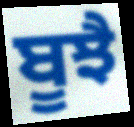
ਬੂਝੈ